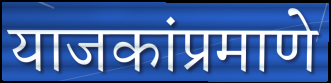
याजकांप्रमाणे